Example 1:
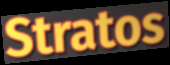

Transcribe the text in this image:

Stratos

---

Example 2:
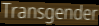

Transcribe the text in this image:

Transgender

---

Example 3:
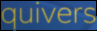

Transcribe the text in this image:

quivers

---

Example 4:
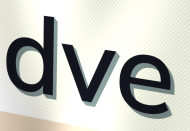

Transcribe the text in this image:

dve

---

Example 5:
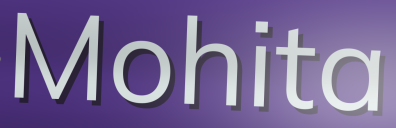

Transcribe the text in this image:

Mohita